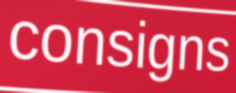
consigns